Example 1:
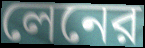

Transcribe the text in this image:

লেনের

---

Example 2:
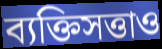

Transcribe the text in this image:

ব্যক্তিসত্তাও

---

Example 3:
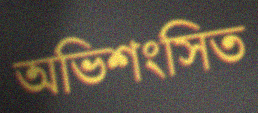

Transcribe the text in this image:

অভিশংসিত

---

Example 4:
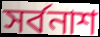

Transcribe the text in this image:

সর্বনাশ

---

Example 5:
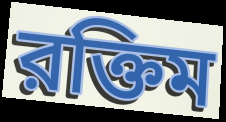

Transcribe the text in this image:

রক্তিম